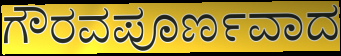
ಗೌರವಪೂರ್ಣವಾದ